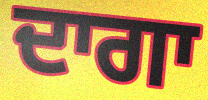
ਦਾਗਾ